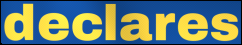
declares